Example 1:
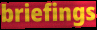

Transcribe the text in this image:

briefings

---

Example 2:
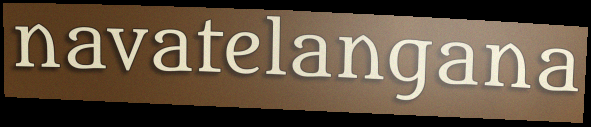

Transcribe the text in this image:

navatelangana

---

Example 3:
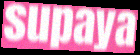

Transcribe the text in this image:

supaya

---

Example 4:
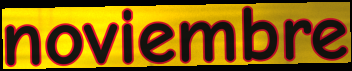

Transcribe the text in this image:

noviembre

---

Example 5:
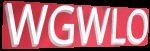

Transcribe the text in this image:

WGWLO